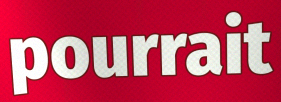
pourrait